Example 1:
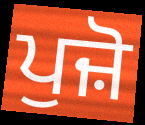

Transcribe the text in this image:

ਪੁਜ਼ੋ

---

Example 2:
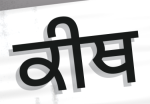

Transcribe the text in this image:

ਕੀਥ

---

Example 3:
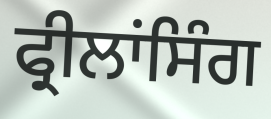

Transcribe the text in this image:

ਫ੍ਰੀਲਾਂਸਿੰਗ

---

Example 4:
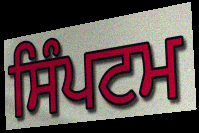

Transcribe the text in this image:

ਸਿੰਪਟਮ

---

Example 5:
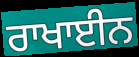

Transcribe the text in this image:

ਰਾਖਾਈਨ